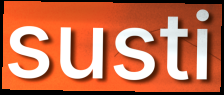
susti